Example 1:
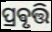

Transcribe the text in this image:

ପ୍ରଵୃତ୍ତି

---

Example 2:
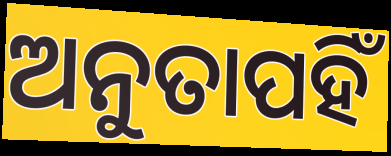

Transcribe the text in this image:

ଅନୁତାପହିଁ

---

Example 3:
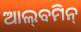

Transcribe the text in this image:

ଆଲ୍‌ବମିନ୍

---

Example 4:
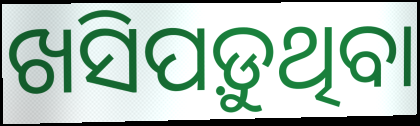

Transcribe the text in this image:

ଖସିପଡ଼ୁଥିବା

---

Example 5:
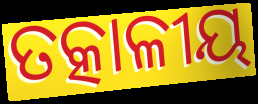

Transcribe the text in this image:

ତତ୍କାଳୀୟ